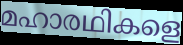
മഹാരഥികളെ